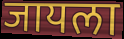
जायला